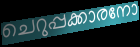
ചെറുപ്പക്കാരനോ